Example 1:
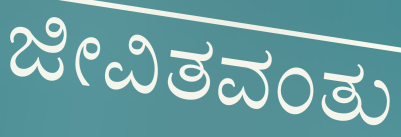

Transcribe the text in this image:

ಜೀವಿತವಂತು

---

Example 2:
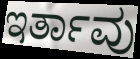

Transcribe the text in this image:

ಇರ್ತಾವು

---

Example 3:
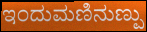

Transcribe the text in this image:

ಇಂದುಮಣಿನುಣ್ಪು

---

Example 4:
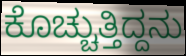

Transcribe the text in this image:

ಕೊಚ್ಚುತ್ತಿದ್ದನು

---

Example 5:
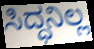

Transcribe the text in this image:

ಸಿದ್ಧನಿಲ್ಲ